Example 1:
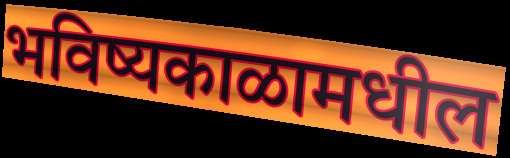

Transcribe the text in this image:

भविष्यकाळामधील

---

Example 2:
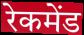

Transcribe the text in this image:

रेकमेंड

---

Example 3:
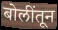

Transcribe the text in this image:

बोलींतून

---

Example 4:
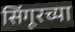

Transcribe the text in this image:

सिंगूरच्या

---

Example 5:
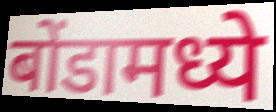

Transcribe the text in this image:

बोंडामध्ये